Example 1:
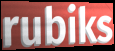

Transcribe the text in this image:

rubiks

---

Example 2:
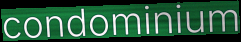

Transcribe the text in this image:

condominium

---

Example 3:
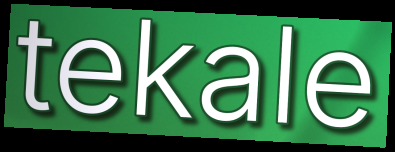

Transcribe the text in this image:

tekale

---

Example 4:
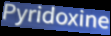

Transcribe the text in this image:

Pyridoxine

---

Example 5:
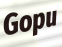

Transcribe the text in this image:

Gopu